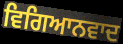
ਵਿਗਿਆਨਵਾਦ